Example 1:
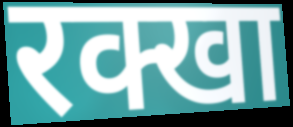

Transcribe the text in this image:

रक्खा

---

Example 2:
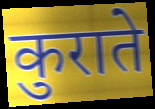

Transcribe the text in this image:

कुराते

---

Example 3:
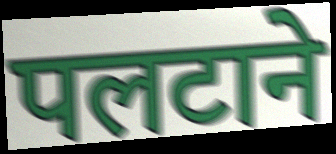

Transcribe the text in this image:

पलटाने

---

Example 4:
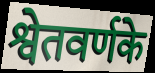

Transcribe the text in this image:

श्वेतवर्णके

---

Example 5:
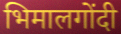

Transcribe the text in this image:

भिमालगोंदी